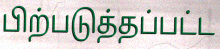
பிற்படுத்தப்பட்ட